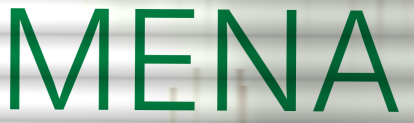
MENA